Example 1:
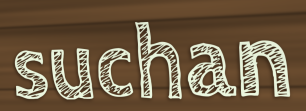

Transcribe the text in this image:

suchan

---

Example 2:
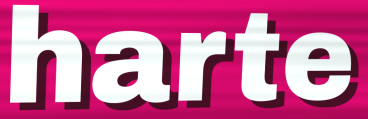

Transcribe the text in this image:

harte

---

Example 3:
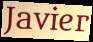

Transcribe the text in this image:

Javier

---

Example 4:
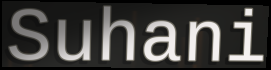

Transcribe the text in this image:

Suhani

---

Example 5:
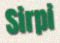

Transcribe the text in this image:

Sirpi